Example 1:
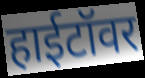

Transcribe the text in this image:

हाईटॉवर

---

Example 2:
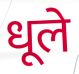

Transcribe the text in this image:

धूले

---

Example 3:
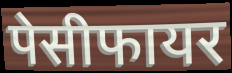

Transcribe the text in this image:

पेसीफायर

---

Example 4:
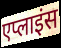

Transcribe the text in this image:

एप्लाइंस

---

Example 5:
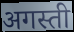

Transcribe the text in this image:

अगस्ती